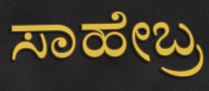
ಸಾಹೇಬ್ರ